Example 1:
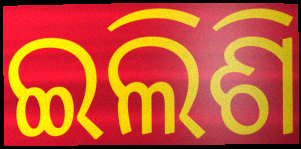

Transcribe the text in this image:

ଇଲିଶି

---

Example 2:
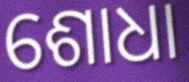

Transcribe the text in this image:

ଶୋଧା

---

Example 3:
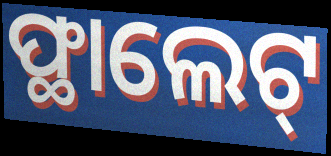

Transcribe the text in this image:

ଫ୍ଥାଲେଟ୍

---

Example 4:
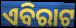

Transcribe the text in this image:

ଏବିରାଟ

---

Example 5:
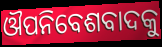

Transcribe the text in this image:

ଔପନିବେଶବାଦକୁ